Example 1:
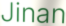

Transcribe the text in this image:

Jinan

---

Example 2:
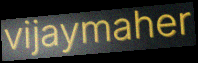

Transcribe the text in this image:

vijaymaher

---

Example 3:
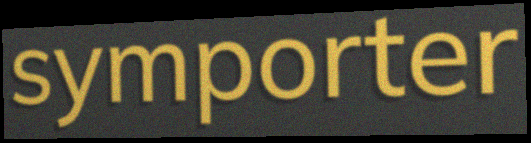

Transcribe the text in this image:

symporter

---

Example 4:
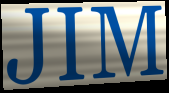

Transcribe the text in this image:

JIM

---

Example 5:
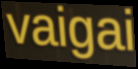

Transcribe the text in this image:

vaigai